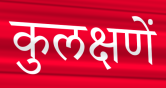
कुलक्षणें